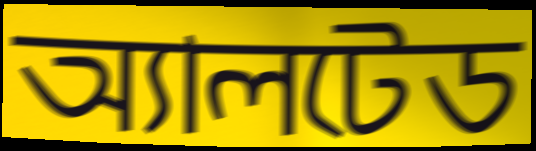
অ্যালটেড